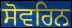
ਸੋਵਰਿਨ